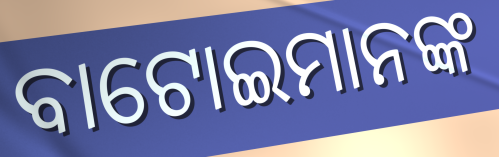
ବାଟୋଇମାନଙ୍କ